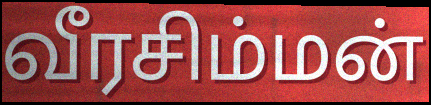
வீரசிம்மன்